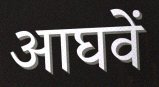
आघवें